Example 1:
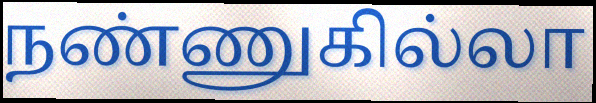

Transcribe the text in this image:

நண்ணுகில்லா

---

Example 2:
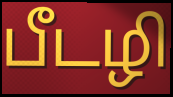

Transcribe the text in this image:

பீடழி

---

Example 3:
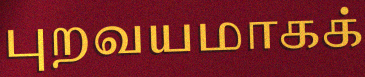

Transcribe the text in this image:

புறவயமாகக்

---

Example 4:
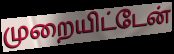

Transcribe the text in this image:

முறையிட்டேன்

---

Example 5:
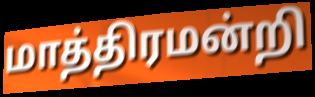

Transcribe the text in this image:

மாத்திரமன்றி